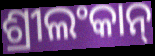
ଶ୍ରୀଲଂକାନ୍